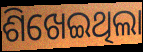
ଶିଖେଇଥିଲା